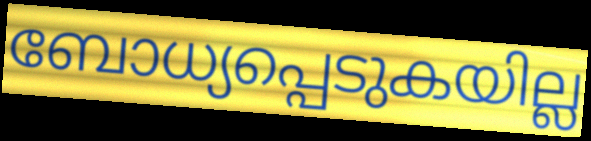
ബോധ്യപ്പെടുകയില്ല